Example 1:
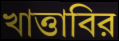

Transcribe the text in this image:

খাত্তাবির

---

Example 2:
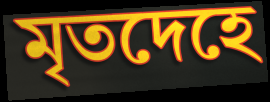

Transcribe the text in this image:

মৃতদেহে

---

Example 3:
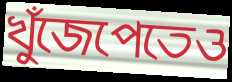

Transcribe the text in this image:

খুঁজেপেতেও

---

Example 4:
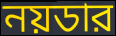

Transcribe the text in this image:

নয়ডার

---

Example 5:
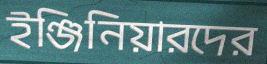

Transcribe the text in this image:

ইঞ্জিনিয়ারদের